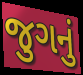
જુગનું